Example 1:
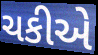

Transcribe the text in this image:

ચકીએ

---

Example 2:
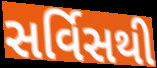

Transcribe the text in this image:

સર્વિસથી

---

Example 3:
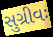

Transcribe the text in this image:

સુગ્રીવઃ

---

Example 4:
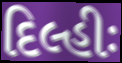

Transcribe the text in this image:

દિલ્હીઃ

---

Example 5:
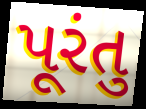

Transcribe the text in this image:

પૂરંતુ